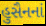
હુસૈનનાં